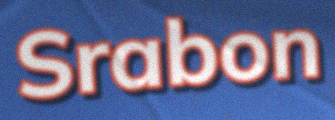
Srabon